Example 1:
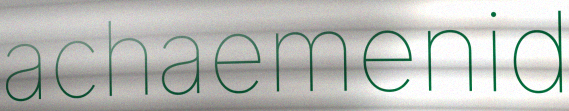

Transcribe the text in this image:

achaemenid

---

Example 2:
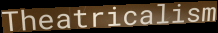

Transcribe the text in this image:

Theatricalism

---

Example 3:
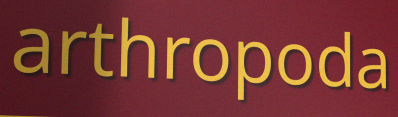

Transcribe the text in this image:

arthropoda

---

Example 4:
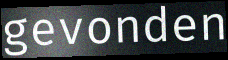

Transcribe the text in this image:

gevonden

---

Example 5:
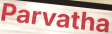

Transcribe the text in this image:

Parvatha